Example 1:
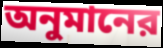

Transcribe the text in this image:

অনুমানের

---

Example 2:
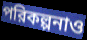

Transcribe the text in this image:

পরিকল্পনাও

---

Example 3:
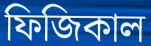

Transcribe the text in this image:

ফিজিকাল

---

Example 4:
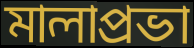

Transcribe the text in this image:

মালাপ্রভা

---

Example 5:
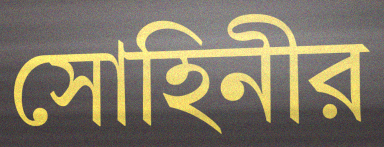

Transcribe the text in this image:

সোহিনীর